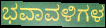
ಭವಾವಳಿಗಳ